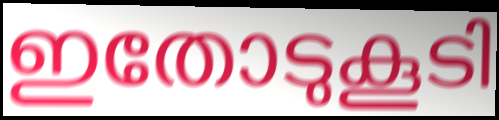
ഇതോടുകൂടി